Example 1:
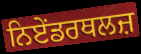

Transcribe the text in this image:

ਨਿਏਂਡਰਥਲਜ਼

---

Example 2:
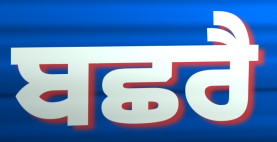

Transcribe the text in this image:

ਬਛਰੈ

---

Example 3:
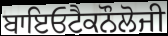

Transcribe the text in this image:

ਬਾਇਓਟੈਕਨੌਲੋਜੀ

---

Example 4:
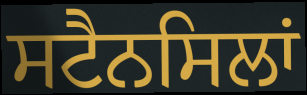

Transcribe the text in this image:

ਸਟੈਨਸਿਲਾਂ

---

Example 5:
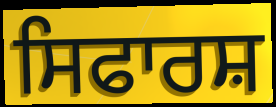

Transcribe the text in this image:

ਸਿਫਾਰਸ਼